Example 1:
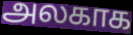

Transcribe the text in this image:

அலகாக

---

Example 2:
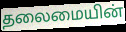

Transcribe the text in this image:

தலைமையின்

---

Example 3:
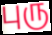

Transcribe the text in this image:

புரு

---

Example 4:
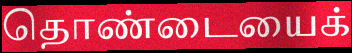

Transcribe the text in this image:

தொண்டையைக்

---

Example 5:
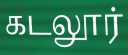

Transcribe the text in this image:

கடலூர்